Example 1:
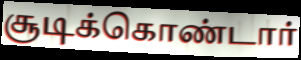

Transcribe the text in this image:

சூடிக்கொண்டார்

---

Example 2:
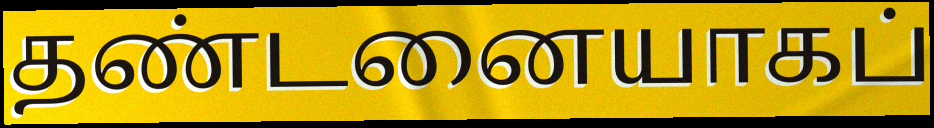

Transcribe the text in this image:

தண்டனையாகப்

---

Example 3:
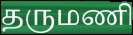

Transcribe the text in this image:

தருமணி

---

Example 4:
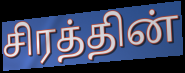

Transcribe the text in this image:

சிரத்தின்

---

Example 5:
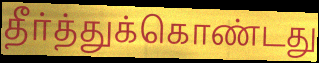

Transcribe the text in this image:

தீர்த்துக்கொண்டது